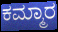
ಕಮ್ಮಾರ